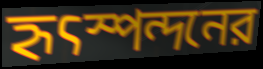
হৃৎস্পন্দনের